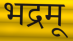
भद्रमू